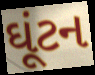
ઘૂંટન